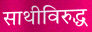
साथीविरुद्ध